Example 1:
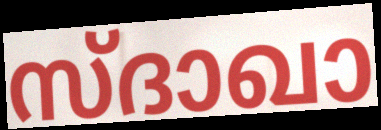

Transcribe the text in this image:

സ്ദാഖാ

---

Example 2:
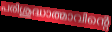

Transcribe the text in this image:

പരിശുദ്ധാത്മാവിന്റെ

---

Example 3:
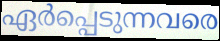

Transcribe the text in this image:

ഏർപ്പെടുന്നവരെ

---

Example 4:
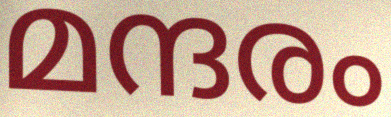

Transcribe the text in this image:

മന്ദരം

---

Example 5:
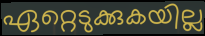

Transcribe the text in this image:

ഏറ്റെടുക്കുകയില്ല